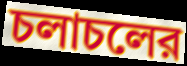
চলাচলের